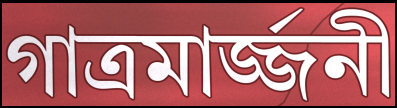
গাত্রমার্জ্জনী